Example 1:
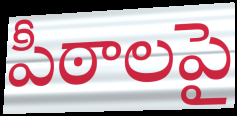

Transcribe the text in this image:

పీఠాలపై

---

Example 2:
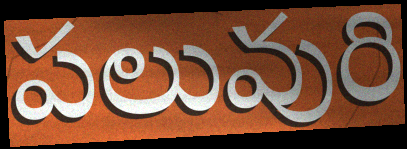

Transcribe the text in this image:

పలువురి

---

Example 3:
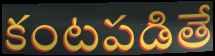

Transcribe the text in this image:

కంటపడితే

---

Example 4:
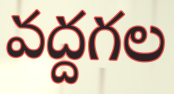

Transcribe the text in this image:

వద్దగల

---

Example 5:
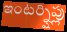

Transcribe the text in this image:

ఇంటర్న్షిప్లు